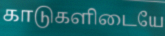
காடுகளிடையே